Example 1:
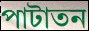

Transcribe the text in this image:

পাটাতন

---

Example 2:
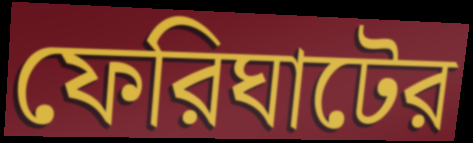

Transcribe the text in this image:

ফেরিঘাটের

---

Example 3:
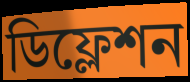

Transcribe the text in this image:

ডিফ্লেশন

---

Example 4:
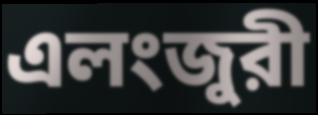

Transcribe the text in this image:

এলংজুরী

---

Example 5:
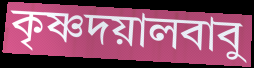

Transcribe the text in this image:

কৃষ্ণদয়ালবাবু